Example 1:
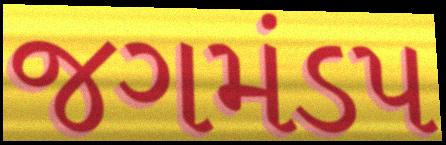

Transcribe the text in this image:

જગમંડપ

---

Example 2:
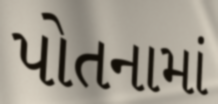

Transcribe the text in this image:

પોતનામાં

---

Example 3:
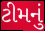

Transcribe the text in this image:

ટીમનું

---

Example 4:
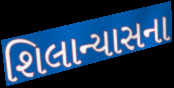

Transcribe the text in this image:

શિલાન્યાસના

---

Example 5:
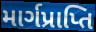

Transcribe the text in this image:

માર્ગપ્રાપ્તિ